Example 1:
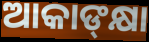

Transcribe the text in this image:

ଆକାଙ୍‍କ୍ଷା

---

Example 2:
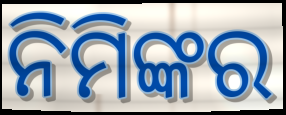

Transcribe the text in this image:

ନିମିଙ୍କର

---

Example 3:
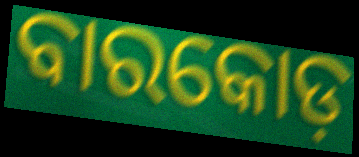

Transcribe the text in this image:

ବାରକୋଡ଼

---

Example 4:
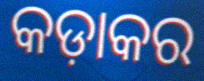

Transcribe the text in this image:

କଡ଼ାକର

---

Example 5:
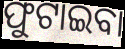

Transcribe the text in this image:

ଫୁଟାଇବା